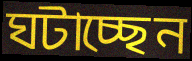
ঘটাচ্ছেন